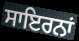
ਸਾਇਰਨਾਂ